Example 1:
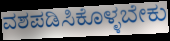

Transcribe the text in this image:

ವಶಪಡಿಸಿಕೊಳ್ಳಬೇಕು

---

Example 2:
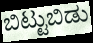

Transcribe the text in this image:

ಬಿಟ್ಟುಬಿಡು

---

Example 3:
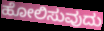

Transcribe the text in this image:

ಹೋಲಿಸುವುದು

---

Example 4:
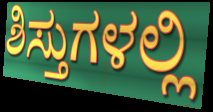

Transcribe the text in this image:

ಶಿಸ್ತುಗಳಲ್ಲಿ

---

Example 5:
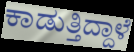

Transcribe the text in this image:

ಕಾಡುತ್ತಿದ್ದಾಳೆ